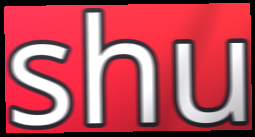
shu